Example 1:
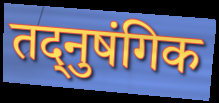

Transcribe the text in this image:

तद्नुषंगिक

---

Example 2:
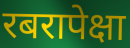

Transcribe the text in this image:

रबरापेक्षा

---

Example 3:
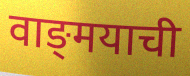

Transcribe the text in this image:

वाङ्मयाची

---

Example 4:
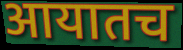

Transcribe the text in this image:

आयातच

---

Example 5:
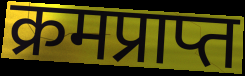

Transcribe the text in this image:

क्रमप्राप्‍त